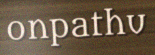
onpathu